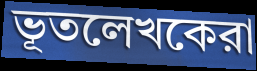
ভূতলেখকেরা